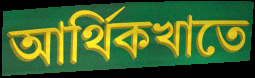
আর্থিকখাতে